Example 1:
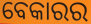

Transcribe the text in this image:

ବେକାରର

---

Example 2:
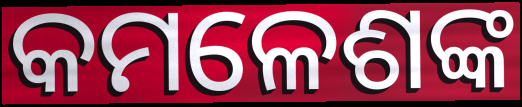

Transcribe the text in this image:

କମଳେଶଙ୍କ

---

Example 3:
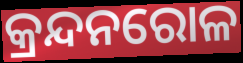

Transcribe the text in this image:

କ୍ରନ୍ଦନରୋଳ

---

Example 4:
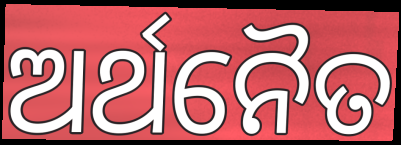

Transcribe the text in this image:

ଅର୍ଥନୈତ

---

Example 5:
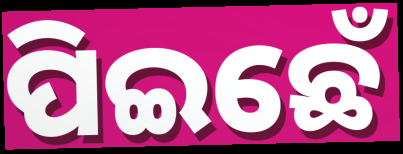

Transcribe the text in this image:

ପିଇଛେଁ